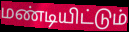
மண்டியிட்டும்